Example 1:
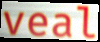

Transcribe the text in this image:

veal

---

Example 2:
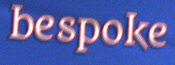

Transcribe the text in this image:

bespoke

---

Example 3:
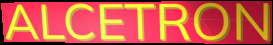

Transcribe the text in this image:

ALCETRON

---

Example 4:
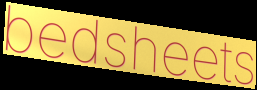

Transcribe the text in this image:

bedsheets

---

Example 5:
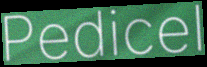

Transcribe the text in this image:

Pedicel